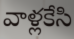
వాళ్లకేసి